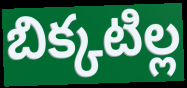
బిక్కటిల్ల